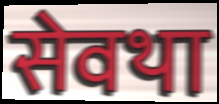
सेवथा